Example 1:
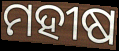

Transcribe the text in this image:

ମହୀଷ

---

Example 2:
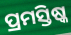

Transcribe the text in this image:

ପ୍ରମସ୍ତିଷ୍କ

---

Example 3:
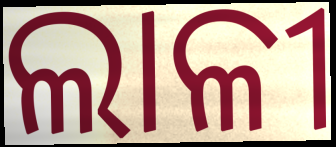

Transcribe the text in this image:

ଲାଳୀ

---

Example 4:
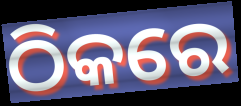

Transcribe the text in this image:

ଠିକରେ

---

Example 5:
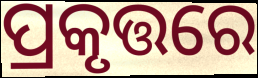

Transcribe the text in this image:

ପ୍ରକୃତ୍ତରେ